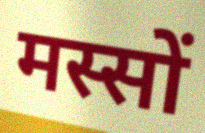
मस्सों